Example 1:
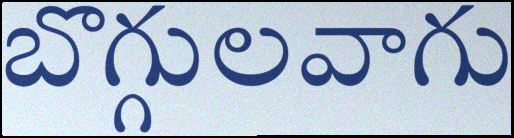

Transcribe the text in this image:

బొగ్గులవాగు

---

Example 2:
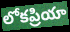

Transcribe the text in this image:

లోకప్రియా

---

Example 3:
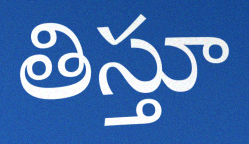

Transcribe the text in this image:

తిస్తూ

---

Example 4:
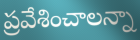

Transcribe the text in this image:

ప్రవేశించాలన్నా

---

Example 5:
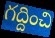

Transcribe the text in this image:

గద్దించి